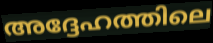
അദ്ദേഹത്തിലെ